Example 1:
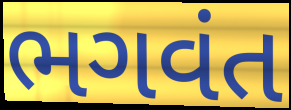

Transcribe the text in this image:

ભગવંત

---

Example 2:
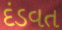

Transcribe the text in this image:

દંડવત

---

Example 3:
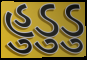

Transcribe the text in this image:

હુડુડુ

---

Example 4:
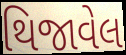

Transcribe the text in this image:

થિજાવેલ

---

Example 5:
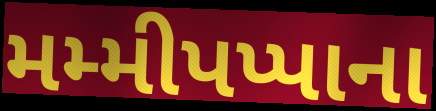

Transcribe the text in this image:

મમ્મીપપ્પાના